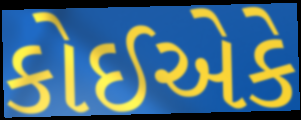
કોઈએકે